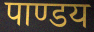
पाण्डय